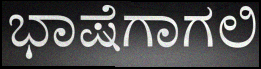
ಭಾಷೆಗಾಗಲಿ